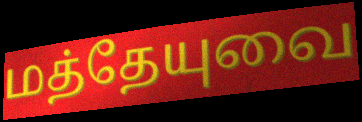
மத்தேயுவை